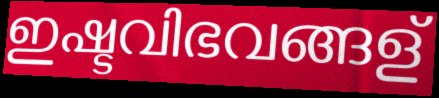
ഇഷ്ടവിഭവങ്ങള്